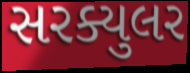
સરક્યુલર